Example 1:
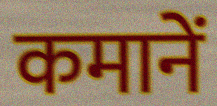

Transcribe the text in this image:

कमानें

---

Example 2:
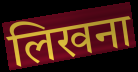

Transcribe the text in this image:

लिखना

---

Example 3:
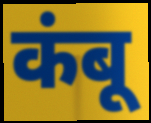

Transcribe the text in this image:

कंबू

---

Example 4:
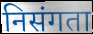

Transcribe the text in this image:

निसंगता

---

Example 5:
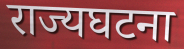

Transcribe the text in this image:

राज्यघटना